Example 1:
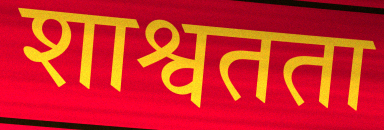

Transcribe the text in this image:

शाश्वतता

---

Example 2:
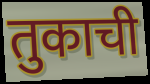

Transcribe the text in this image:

तुकाची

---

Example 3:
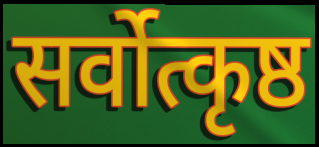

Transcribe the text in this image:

सर्वोत्कृष्ठ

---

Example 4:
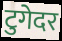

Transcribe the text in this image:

टुगेदर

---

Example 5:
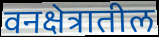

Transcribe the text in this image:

वनक्षेत्रातील